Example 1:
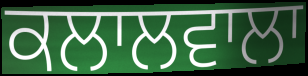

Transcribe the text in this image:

ਕਲਾਲਵਾਲਾ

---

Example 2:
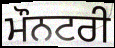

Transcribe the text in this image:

ਮੌਨਟਰੀ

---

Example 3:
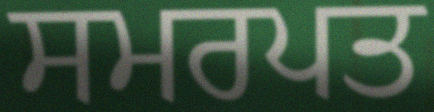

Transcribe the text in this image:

ਸਮਰਪਤ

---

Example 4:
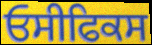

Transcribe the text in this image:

ਓਸੀਫਿਕਸ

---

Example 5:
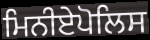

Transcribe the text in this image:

ਮਿਨੀਏਪੋਲਿਸ